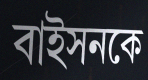
বাইসনকে